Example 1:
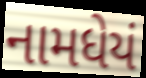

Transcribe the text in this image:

નામધેયં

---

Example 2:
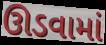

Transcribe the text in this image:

ઊડવામાં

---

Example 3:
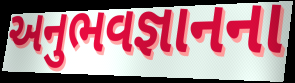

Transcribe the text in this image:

અનુભવજ્ઞાનના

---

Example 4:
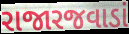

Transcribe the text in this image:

રાજારજવાડાં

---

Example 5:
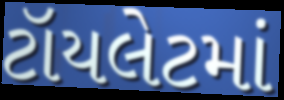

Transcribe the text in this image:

ટૉયલેટમાં